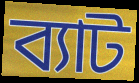
ব্যাট